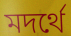
মদর্থে